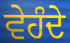
ਵੇਹੰਦੇ